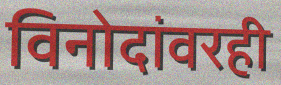
विनोदांवरही